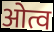
ओत्व